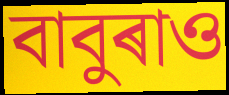
বাবুৰাও